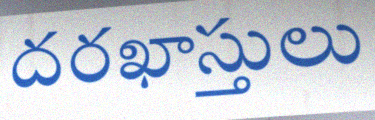
దరఖాస్తులు